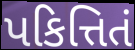
પકિત્તિતં